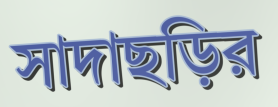
সাদাছড়ির